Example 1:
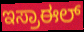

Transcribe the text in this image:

ಇಸ್ರಾಈಲ್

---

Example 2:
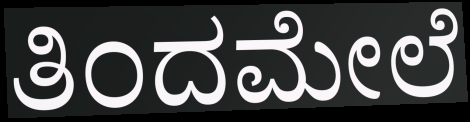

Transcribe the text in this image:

ತಿಂದಮೇಲೆ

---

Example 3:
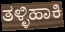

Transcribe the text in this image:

ತಳ್ಳಿಹಾಕಿ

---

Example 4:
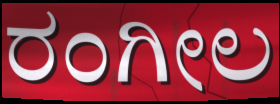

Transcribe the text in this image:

ರಂಗೀಲ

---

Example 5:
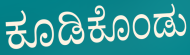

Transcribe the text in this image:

ಕೂಡಿಕೊಂಡು